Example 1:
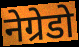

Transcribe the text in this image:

नेग्रेडो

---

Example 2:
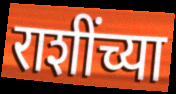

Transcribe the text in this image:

राशींच्या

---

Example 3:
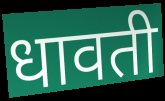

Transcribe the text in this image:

धावती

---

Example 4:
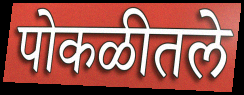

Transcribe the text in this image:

पोकळीतले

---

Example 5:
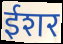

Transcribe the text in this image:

ईशर